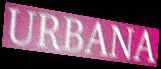
URBANA